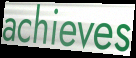
achieves